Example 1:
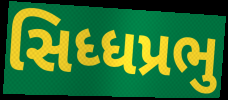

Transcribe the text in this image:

સિધ્ધપ્રભુ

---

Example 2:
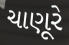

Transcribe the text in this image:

ચાણૂરે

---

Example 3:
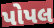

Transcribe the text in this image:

પોપલ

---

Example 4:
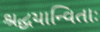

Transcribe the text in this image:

શ્રદ્ધયાન્વિતાઃ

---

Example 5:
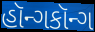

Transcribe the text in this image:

હૉન્ગકૉન્ગ